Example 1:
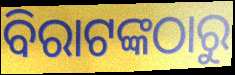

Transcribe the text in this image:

ବିରାଟଙ୍କଠାରୁ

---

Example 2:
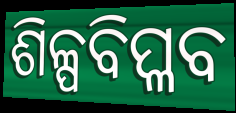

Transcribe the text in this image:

ଶିଳ୍ପବିପ୍ଳବ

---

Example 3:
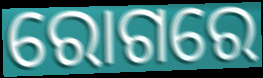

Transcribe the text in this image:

ରୋଗରେ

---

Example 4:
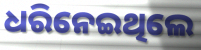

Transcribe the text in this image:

ଧରିନେଇଥିଲେ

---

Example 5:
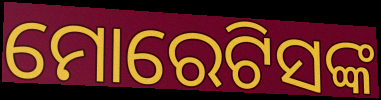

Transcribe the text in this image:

ମୋରେଟିସଙ୍କ